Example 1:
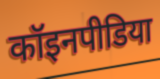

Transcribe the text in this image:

कॉइनपीडिया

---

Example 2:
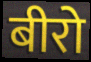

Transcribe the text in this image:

बीरो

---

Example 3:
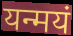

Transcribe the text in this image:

यन्मयं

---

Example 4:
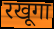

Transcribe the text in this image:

रखूगा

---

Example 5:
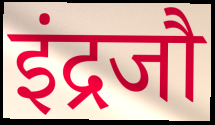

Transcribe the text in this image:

इंद्रजौ